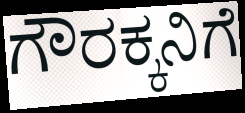
ಗೌರಕ್ಕನಿಗೆ